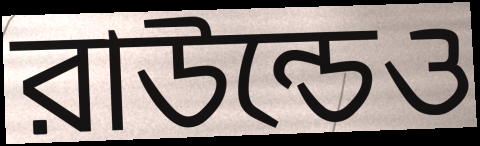
রাউন্ডেও